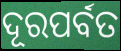
ଦୂରପର୍ବତ